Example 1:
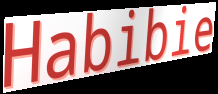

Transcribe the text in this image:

Habibie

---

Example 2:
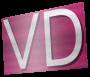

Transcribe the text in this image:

VD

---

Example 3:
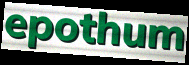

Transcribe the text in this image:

epothum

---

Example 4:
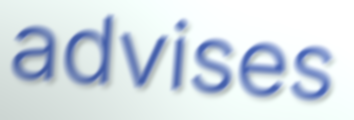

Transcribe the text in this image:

advises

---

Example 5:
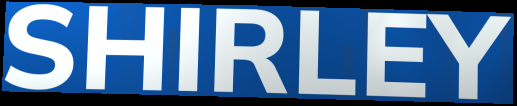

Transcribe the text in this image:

SHIRLEY